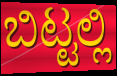
ಬಿಟ್ಟಲ್ಲಿ